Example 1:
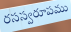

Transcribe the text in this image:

రసస్వరూపము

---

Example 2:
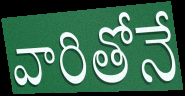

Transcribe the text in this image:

వారితోనే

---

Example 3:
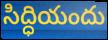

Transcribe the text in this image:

సిద్ధియందు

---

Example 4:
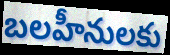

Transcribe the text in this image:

బలహీనులకు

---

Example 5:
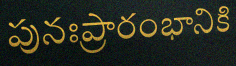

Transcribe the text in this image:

పునఃప్రారంభానికి